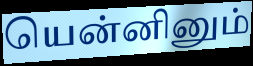
யென்னினும்